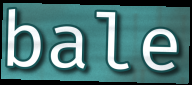
bale